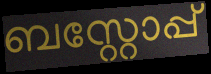
ബസ്റ്റോപ്പ്